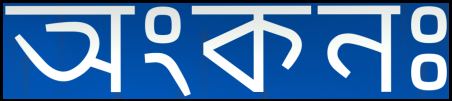
অংকনঃ